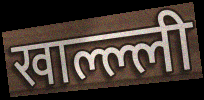
खाल्ल्ली